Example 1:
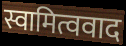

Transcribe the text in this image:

स्वामित्ववाद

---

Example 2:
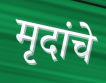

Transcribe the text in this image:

मृदांचे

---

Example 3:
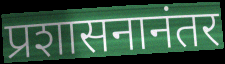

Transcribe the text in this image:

प्रशासनानंतर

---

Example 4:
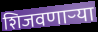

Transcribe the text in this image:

शिजवणाऱ्या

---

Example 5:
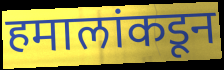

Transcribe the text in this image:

हमालांकडून